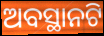
ଅବସ୍ଥାନଟି